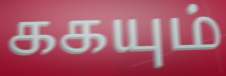
ககயும்